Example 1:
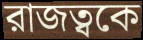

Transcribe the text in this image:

রাজত্বকে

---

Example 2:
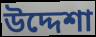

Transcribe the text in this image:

উদ্দেশা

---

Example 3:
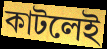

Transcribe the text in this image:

কাটলেই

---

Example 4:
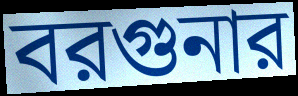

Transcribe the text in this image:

বরগুনার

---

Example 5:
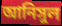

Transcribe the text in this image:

আনিসুল